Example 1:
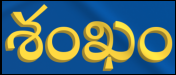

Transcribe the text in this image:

శంఖం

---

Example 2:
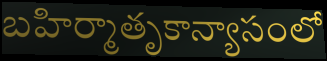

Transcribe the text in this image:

బహిర్మాతృకాన్యాసంలో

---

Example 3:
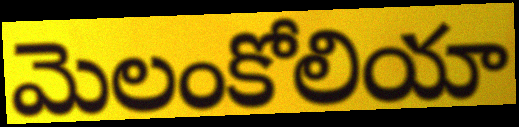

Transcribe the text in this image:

మెలంకోలియా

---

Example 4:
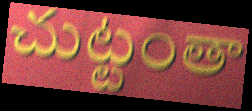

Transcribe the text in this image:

చుట్టంతా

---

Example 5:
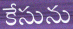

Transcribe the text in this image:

కేసును